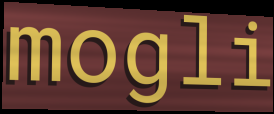
mogli